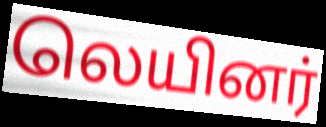
லெயினர்